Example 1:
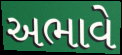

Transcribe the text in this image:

અભાવે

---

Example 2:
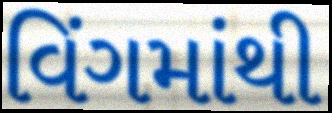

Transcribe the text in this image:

વિંગમાંથી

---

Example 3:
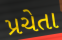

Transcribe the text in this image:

પ્રચેતા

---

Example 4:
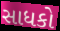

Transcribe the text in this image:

સાધકો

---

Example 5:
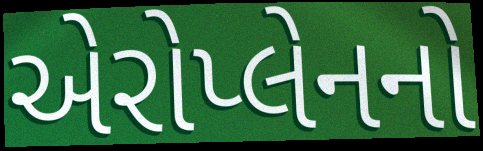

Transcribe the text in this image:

એરોપ્લેનનો